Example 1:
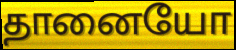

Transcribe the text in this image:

தானையோ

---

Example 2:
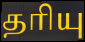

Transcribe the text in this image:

தரியு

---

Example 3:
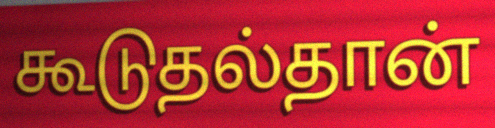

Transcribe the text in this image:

கூடுதல்தான்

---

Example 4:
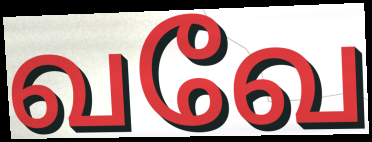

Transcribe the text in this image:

வவே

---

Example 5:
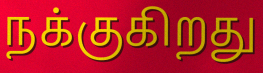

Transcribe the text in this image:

நக்குகிறது